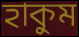
হাকুম